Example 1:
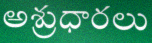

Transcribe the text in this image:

అశ్రుధారలు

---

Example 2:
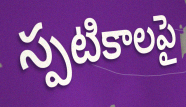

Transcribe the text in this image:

స్పటికాలపై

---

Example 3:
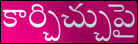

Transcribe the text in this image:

కార్చిచ్చుపై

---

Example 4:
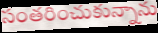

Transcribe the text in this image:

సంతరించుకున్నాను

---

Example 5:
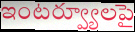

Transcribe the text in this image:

ఇంటర్వ్యూలపై